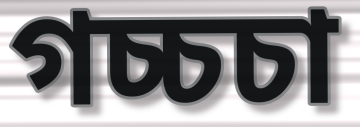
গচ্চচা